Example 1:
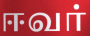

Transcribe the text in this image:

ஈவர்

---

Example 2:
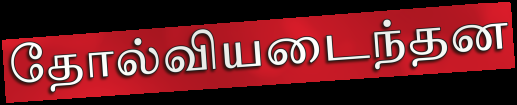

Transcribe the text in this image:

தோல்வியடைந்தன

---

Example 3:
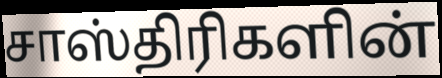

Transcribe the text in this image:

சாஸ்திரிகளின்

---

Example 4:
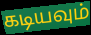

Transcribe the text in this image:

கடியவும்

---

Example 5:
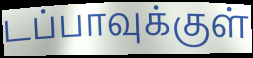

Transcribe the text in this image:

டப்பாவுக்குள்